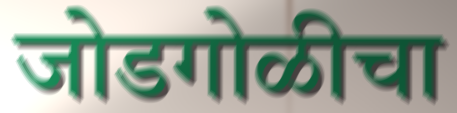
जोडगोळीचा